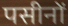
पसीनों